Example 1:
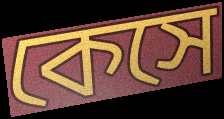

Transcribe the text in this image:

কেসে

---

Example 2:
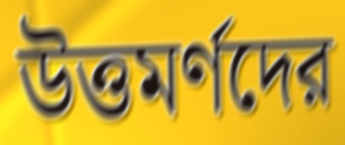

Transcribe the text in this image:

উত্তমর্ণদের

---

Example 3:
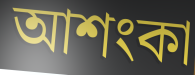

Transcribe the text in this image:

আশংকা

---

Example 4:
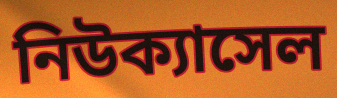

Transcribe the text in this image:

নিউক্যাসেল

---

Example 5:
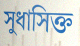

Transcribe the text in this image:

সুধাসিক্ত